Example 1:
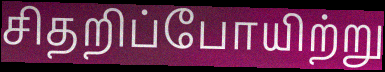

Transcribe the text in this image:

சிதறிப்போயிற்று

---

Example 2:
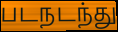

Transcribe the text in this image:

படநடந்து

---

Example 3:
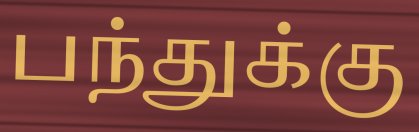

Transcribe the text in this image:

பந்துக்கு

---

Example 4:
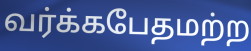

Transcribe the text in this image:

வர்க்கபேதமற்ற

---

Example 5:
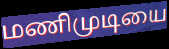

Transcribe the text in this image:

மணிமுடியை